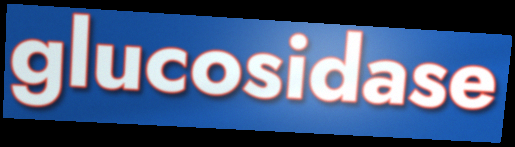
glucosidase